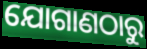
ଯୋଗାଣଠାରୁ